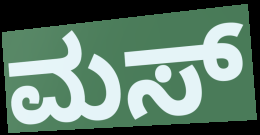
ಮಸ್